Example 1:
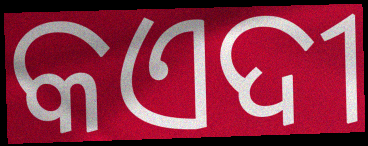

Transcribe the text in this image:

କଏଦୀ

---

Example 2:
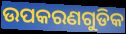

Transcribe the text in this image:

ଉପକରଣଗୁଡିକ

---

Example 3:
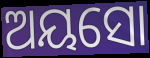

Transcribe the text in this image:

ଅୟସୋ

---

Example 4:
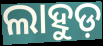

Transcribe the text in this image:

ଲାହୁଡ଼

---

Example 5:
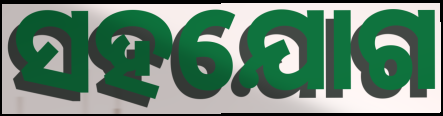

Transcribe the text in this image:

ସହଯୋଗ